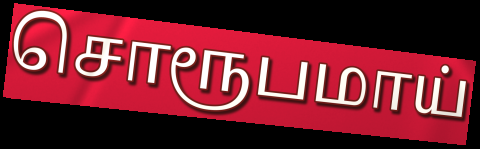
சொரூபமாய்